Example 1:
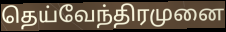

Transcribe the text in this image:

தெய்வேந்திரமுனை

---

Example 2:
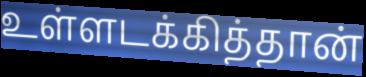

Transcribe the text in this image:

உள்ளடக்கித்தான்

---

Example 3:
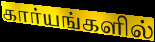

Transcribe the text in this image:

கார்யங்களில்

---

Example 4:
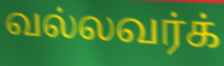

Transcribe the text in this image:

வல்லவர்க்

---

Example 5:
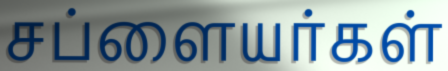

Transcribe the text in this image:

சப்ளையர்கள்